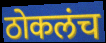
ठोकलंच